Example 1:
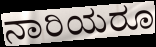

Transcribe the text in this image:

ನಾರಿಯರೂ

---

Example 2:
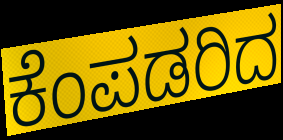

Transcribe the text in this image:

ಕೆಂಪಡರಿದ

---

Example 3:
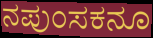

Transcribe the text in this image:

ನಪುಂಸಕನೂ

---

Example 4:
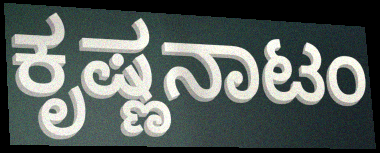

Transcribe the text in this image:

ಕೃಷ್ಣನಾಟಂ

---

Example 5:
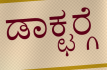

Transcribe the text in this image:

ಡಾಕ್ಟರ್‍ಗೆ